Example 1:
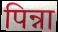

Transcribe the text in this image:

पिन्ना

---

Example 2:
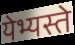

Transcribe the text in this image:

येभ्यस्ते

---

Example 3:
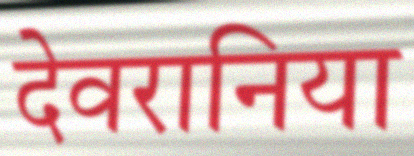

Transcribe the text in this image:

देवरानिया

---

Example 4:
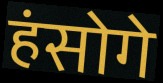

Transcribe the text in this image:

हंसोगे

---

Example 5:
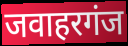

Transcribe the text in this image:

जवाहरगंज